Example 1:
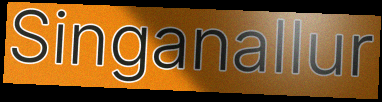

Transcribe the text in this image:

Singanallur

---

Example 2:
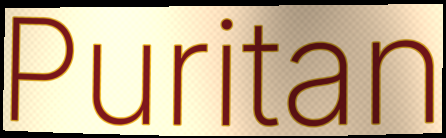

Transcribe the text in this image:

Puritan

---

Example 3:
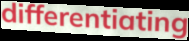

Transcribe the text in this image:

differentiating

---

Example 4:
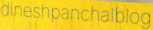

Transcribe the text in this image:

dineshpanchalblog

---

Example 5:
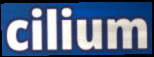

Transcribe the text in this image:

cilium